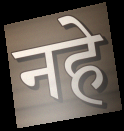
नहे